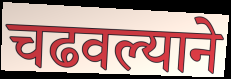
चढवल्याने